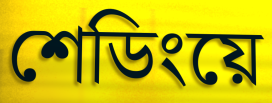
শেডিংয়ে